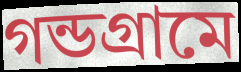
গন্ডগ্রামে